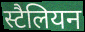
स्टैलियन